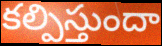
కల్పిస్తుందా